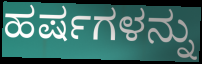
ಹರ್ಷಗಳನ್ನು